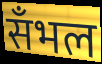
सँभल